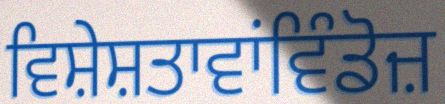
ਵਿਸ਼ੇਸ਼ਤਾਵਾਂਵਿੰਡੋਜ਼